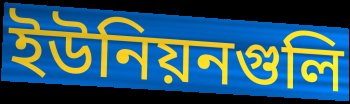
ইউনিয়নগুলি